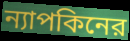
ন্যাপকিনের